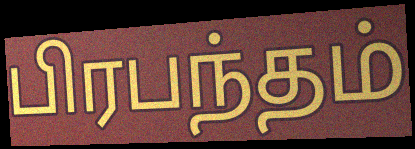
பிரபந்தம்